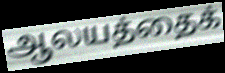
ஆலயத்தைக்